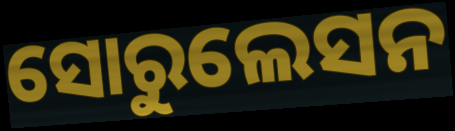
ସୋରୁଲେସନ